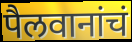
पैलवानांचं